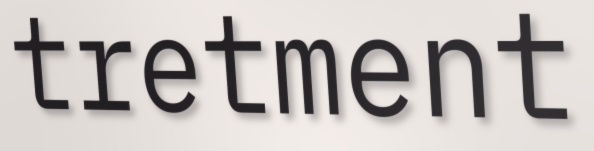
tretment